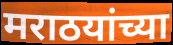
मराठयांच्या